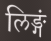
लिङ्गं